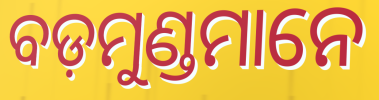
ବଡ଼ମୁଣ୍ଡମାନେ